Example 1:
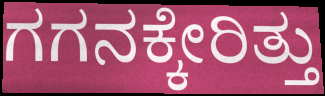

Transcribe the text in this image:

ಗಗನಕ್ಕೇರಿತ್ತು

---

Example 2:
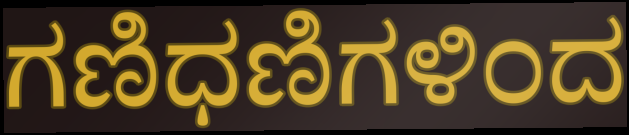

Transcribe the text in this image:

ಗಣಿಧಣಿಗಳಿಂದ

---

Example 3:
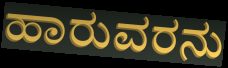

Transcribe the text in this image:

ಹಾರುವರನು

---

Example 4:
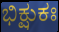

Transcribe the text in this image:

ಭಿಕ್ಷುಕಃ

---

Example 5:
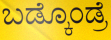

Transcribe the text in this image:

ಬಡ್ಕೊಂಡ್ರೆ